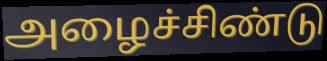
அழைச்சிண்டு